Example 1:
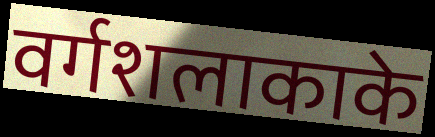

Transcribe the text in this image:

वर्गशलाकाके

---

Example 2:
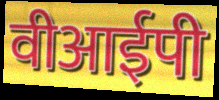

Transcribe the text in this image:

वीआईपी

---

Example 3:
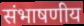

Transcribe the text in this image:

संभाषणीय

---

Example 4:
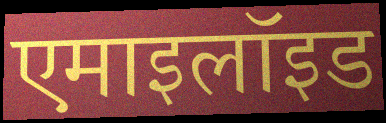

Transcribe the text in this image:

एमाइलॉइड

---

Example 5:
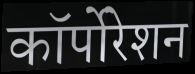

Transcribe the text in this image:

कॉर्पोरेशन